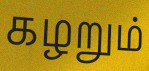
கழறும்